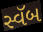
સ્વૅબ